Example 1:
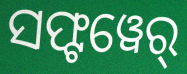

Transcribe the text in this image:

ସଫ୍ଟୱେର୍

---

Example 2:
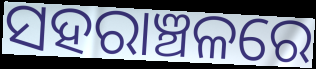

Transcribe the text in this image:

ସହରାଞ୍ଚଳରେ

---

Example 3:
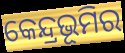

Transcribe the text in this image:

କେନ୍ଦ୍ରଭୂମିର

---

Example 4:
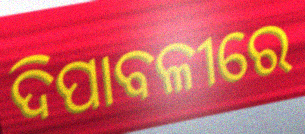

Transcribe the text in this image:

ଦିପାବଳୀରେ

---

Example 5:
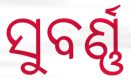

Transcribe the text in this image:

ସୁବର୍ଣ୍ଣ